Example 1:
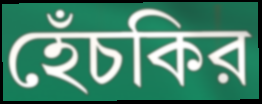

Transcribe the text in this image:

হেঁচকির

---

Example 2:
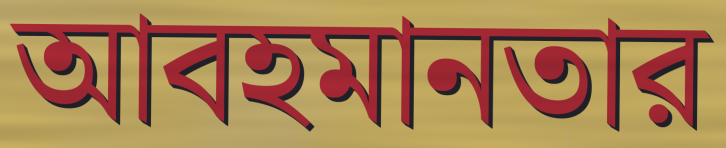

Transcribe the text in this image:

আবহমানতার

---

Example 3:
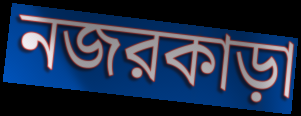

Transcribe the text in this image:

নজরকাড়া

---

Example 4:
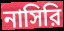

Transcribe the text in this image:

নাসিরি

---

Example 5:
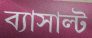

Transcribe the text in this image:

ব্যাসাল্ট